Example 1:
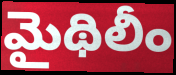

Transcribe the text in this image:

మైథిలీం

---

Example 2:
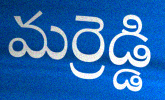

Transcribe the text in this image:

మర్రెడ్డి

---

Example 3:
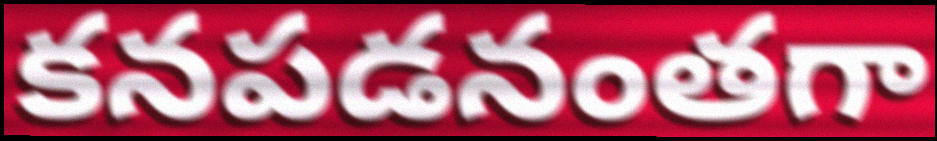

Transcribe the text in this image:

కనపడనంతగా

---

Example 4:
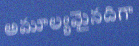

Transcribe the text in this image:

అమూల్యమైనదిగా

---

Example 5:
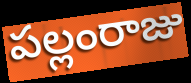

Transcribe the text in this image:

పల్లంరాజు